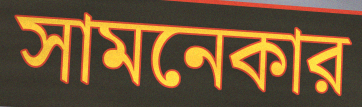
সামনেকার